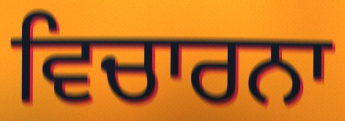
ਵਿਚਾਰਨਾ